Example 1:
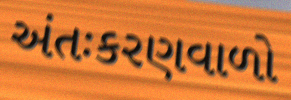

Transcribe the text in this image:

અંતઃકરણવાળો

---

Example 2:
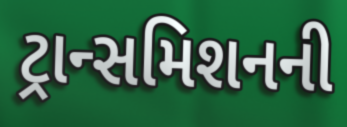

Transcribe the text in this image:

ટ્રાન્સમિશનની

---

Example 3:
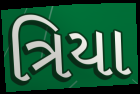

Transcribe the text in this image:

ત્રિયા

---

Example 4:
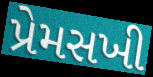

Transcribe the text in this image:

પ્રેમસખી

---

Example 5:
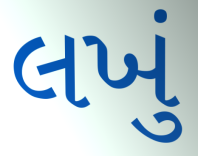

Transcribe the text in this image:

લખું